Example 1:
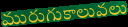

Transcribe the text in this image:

మురుగుకాలువలు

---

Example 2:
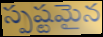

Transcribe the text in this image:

స్పష్టమైన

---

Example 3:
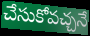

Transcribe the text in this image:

చేసుకోవచ్చనే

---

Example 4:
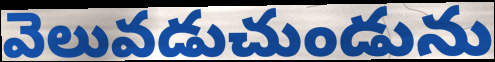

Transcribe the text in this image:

వెలువడుచుండును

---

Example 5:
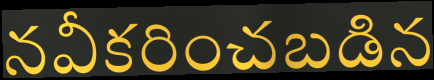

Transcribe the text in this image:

నవీకరించబడిన